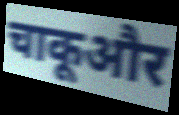
चाकूऔर